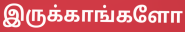
இருக்காங்களோ